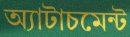
অ্যাটাচমেন্ট